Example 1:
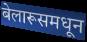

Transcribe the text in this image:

बेलारूसमधून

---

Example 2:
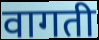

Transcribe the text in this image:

वागती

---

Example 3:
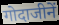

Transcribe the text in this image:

गोदाजीनें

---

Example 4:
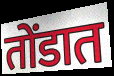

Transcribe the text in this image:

तोंडात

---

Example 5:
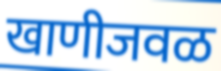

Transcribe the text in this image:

खाणीजवळ